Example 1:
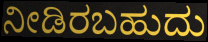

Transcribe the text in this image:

ನೀಡಿರಬಹುದು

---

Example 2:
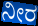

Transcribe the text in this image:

ನೀರ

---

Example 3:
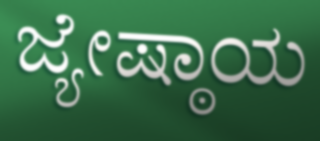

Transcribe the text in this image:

ಜ್ಯೇಷ್ಠಾಯ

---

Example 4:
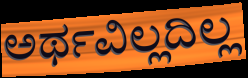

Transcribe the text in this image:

ಅರ್ಥವಿಲ್ಲದಿಲ್ಲ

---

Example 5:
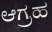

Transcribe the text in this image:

ಆಗ್ರಹ